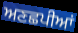
ਅਣਛਪੀਆਂ